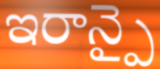
ఇరాన్పై